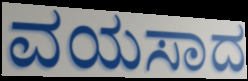
ವಯಸಾದ